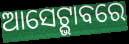
ଆସେଟ୍ଭାବରେ